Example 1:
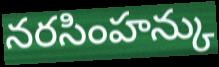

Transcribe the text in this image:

నరసింహన్కు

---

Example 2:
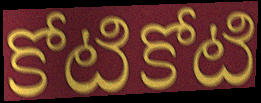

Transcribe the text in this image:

కోటికోటి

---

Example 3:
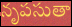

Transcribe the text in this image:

నృపసుతా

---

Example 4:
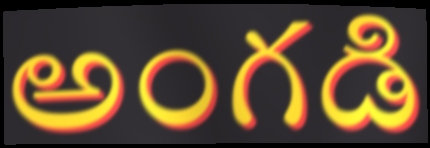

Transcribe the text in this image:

అంగడి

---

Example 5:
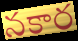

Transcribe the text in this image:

నకార